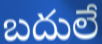
బదులే